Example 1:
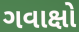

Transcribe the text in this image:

ગવાક્ષો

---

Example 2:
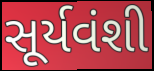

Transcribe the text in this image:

સૂર્યવંશી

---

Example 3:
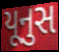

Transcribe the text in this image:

યૂનુસ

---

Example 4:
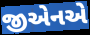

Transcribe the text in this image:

જીએનએ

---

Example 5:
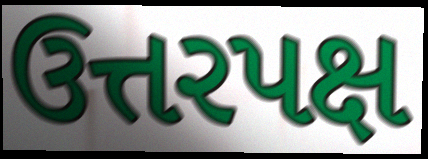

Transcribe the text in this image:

ઉત્તરપક્ષ